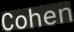
Cohen